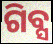
ଗିବ୍ସ